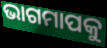
ଭାଗମାପକୁ